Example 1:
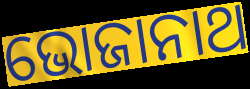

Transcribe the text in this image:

ଭୋଜାନାଥ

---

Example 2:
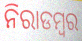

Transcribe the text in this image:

ନିରାଡମ୍ଵର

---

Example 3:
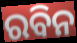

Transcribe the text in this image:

ରବିନ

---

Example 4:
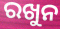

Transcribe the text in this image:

ରଖୁନ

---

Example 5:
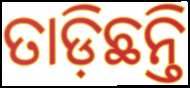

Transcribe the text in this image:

ତାଡ଼ିଛନ୍ତି